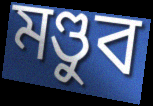
মণ্ডুব